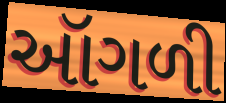
ઑગળી